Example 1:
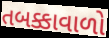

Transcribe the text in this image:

તબક્કાવાળો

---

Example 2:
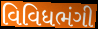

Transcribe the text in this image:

વિવિધભંગી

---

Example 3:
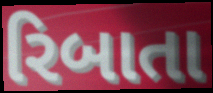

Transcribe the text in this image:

રિબાતા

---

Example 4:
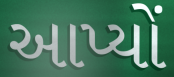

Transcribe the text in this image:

આપ્યોં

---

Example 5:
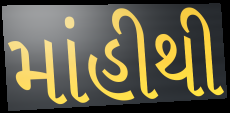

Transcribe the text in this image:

માંહીથી